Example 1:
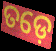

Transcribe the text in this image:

ତଡ଼େ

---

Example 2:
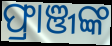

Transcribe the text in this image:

ଫ୍ରାଞ୍ଜଙ୍କ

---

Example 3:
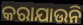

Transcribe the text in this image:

କରାଯାଉନି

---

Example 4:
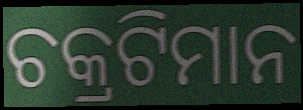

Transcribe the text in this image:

ଚକ୍ରଟିମାନ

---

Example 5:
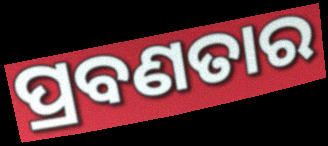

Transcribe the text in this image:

ପ୍ରବଣତାର